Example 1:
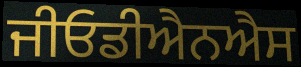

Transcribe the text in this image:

ਜੀਓਡੀਐਨਐਸ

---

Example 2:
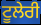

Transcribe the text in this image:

ਟੂਲੇਰੀ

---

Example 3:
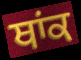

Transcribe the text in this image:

ਥਾਂਕ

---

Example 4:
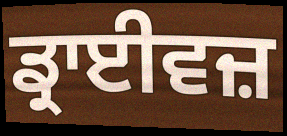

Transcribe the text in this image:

ਡ੍ਰਾਈਵਜ਼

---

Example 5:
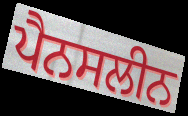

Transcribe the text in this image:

ਪੈਨਸਲੀਨ